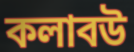
কলাবউ